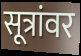
सूत्रांवर